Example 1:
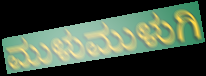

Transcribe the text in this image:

ಮುಳುಮುಳುಗಿ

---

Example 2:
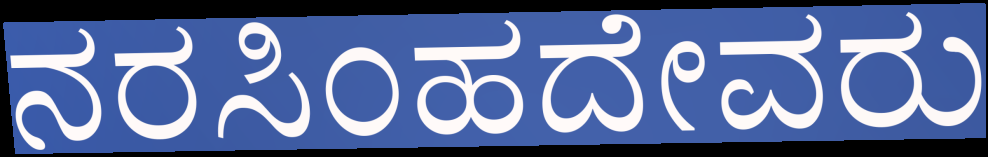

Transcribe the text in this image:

ನರಸಿಂಹದೇವರು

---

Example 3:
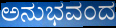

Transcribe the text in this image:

ಅನುಭವಂದ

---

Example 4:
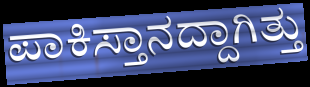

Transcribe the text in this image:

ಪಾಕಿಸ್ತಾನದ್ದಾಗಿತ್ತು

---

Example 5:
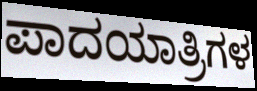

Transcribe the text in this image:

ಪಾದಯಾತ್ರಿಗಳ